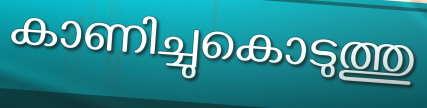
കാണിച്ചുകൊടുത്തു